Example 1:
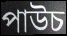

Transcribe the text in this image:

পাউচ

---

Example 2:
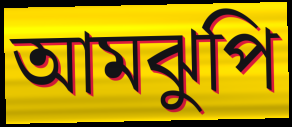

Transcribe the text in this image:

আমঝুপি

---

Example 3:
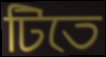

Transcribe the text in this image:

টিতে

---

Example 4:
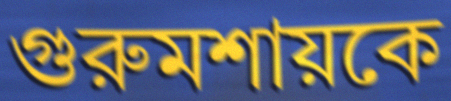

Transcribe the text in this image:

গুরুমশায়কে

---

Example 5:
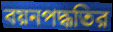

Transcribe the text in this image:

বয়নপদ্ধতির